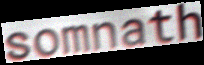
somnath